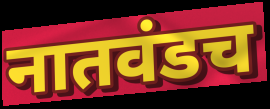
नातवंडच